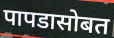
पापडासोबत